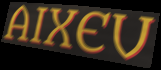
AIXEU